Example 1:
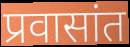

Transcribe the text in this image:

प्रवासांत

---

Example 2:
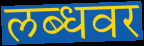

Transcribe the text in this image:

लब्धवर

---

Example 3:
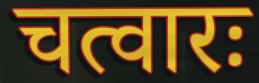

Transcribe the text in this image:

चत्वारः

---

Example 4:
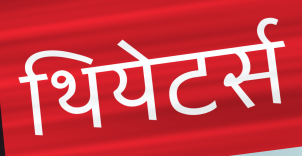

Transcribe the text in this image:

थियेटर्स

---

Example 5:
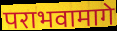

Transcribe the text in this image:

पराभवामागे